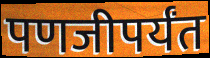
पणजीपर्यंत